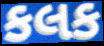
કલક